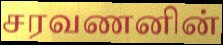
சரவணனின்